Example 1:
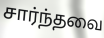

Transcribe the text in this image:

சார்ந்தவை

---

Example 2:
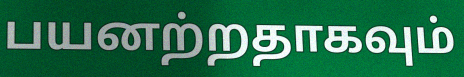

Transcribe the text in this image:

பயனற்றதாகவும்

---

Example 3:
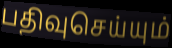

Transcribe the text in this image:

பதிவுசெய்யும்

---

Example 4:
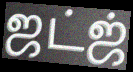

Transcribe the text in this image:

ஜட்ஜ்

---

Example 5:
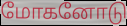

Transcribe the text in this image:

மோகனோடு